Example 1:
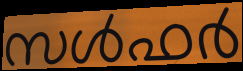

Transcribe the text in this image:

സൾഫർ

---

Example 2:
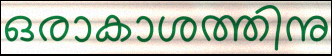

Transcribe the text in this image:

ഒരാകാശത്തിനു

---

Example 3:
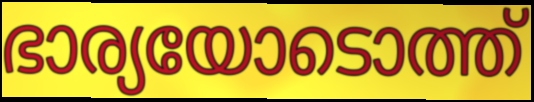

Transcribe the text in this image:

ഭാര്യയോടൊത്ത്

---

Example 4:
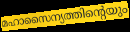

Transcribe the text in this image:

മഹാസൈന്യത്തിന്റെയും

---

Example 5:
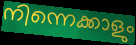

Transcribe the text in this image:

നിന്നെക്കാളും